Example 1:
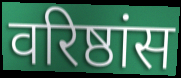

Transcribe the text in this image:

वरिष्ठांस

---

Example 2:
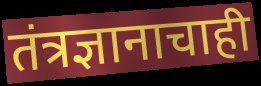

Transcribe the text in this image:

तंत्रज्ञानाचाही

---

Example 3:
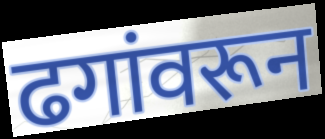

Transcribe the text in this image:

ढगांवरून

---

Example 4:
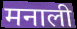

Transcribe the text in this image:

मनाली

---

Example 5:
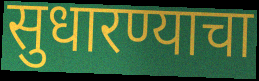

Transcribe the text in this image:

सुधारण्याचा